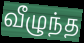
வீழுந்த